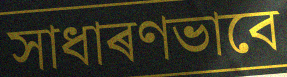
সাধাৰণভাবে